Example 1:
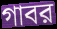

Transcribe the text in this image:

গাবর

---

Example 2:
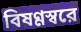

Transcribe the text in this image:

বিষণ্ণস্বরে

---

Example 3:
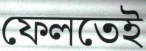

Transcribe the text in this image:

ফেলতেই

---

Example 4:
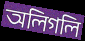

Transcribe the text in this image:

অলিগলি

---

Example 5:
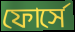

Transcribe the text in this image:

ফোর্সে